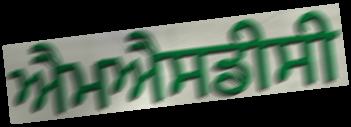
ਐਮਐਸਡੀਸੀ